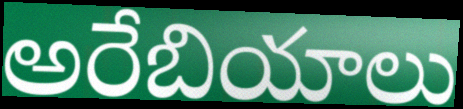
అరేబియాలు